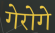
गेरोगे